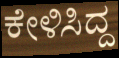
ಕೇಳಿಸಿದ್ದ